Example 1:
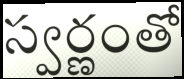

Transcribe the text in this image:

స్వర్ణంతో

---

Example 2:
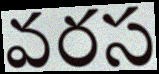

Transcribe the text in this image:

వరస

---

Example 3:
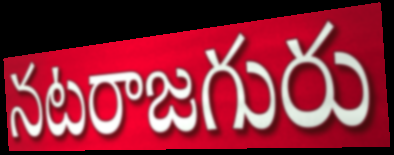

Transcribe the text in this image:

నటరాజగురు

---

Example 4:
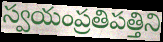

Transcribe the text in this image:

స్వయంప్రతిపత్తిని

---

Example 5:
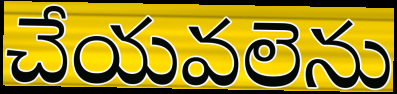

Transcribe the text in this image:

చేయవలెను